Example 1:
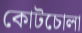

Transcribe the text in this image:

কোটচোলা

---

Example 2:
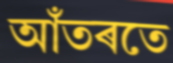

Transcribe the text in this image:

আঁতৰতে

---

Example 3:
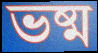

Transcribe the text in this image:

ভষ্ম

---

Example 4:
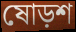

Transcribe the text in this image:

ষোড়শ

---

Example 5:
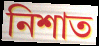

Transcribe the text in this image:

নিশাত